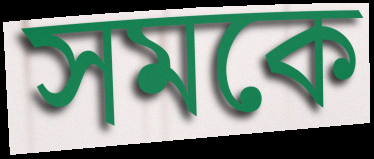
সমকে